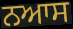
ਨਆਸ